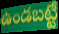
ఉండబట్టే